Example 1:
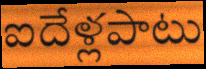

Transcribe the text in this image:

ఐదేళ్లపాటు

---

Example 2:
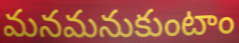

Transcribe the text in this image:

మనమనుకుంటాం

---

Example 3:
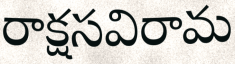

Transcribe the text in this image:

రాక్షసవిరామ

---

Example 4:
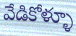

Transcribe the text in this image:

వేడికోళ్ళూ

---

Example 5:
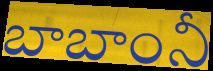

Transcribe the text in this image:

బాబాంనీ